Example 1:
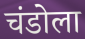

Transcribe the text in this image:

चंडोला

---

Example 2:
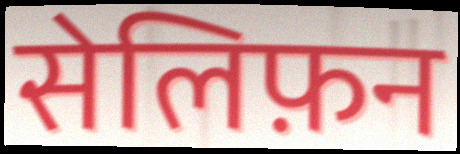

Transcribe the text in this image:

सेलिफ़न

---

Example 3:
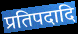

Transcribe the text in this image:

प्रतिपदादि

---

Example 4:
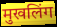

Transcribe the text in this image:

मुखलिंग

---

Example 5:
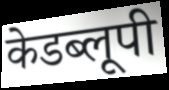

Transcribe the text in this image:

केडब्लूपी